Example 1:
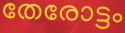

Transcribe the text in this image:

തേരോട്ടം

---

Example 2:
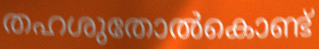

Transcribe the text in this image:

തഹശുതോൽകൊണ്ട്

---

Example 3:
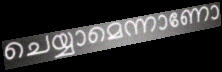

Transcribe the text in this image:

ചെയ്യാമെന്നാണോ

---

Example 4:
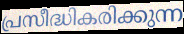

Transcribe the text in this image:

പ്രസീദ്ധികരിക്കുന്ന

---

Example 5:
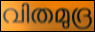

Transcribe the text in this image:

വിതമുദ്ര